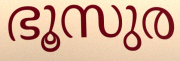
ഭൂസുര